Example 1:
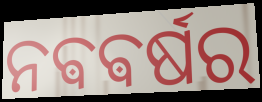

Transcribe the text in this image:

ନଵଵର୍ଷର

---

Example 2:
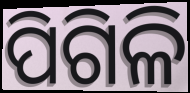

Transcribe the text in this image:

ପିଗିଳି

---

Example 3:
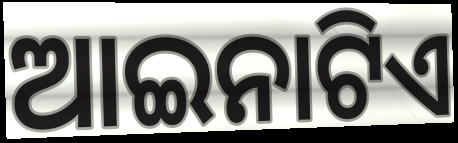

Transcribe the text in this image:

ଆଇନାଟିଏ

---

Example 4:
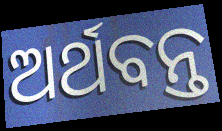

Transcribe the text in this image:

ଅର୍ଥବନ୍ତ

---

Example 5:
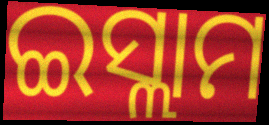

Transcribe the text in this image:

ଇସ୍ଲାମ